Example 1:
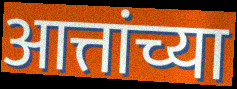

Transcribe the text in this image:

आत्तांच्या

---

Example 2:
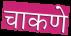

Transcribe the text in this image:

चाकणे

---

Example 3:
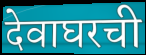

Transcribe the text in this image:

देवाघरची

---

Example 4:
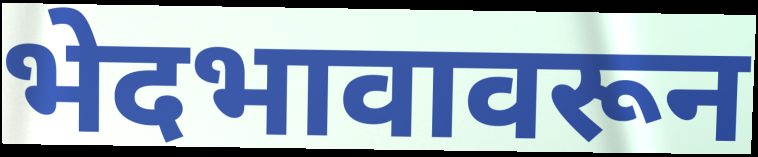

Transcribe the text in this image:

भेदभावावरून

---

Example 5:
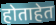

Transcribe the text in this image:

होताहेत